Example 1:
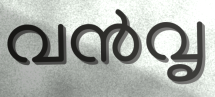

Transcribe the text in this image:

വൻവൃ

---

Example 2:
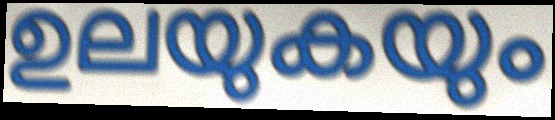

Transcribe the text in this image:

ഉലയുകയും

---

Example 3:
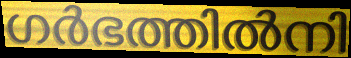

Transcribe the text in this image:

ഗർഭത്തിൽനി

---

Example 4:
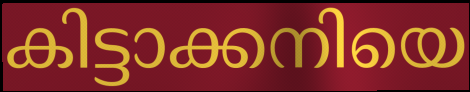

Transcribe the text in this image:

കിട്ടാക്കനിയെ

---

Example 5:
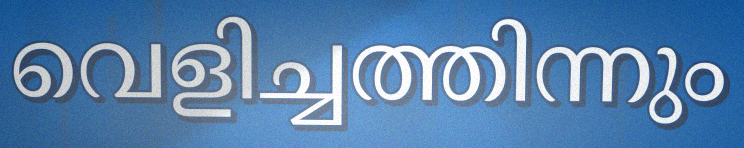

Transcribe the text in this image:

വെളിച്ചത്തിന്നും